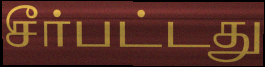
சீர்பட்டது